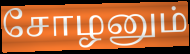
சோழனும்